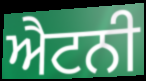
ਐਟਨੀ